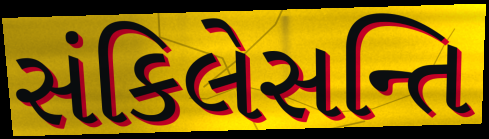
સંકિલેસન્તિ